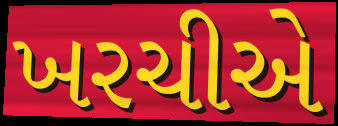
ખરચીએ